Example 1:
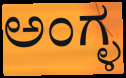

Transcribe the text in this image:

ಅಂಗ್ಳ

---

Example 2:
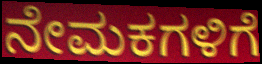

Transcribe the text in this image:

ನೇಮಕಗಳಿಗೆ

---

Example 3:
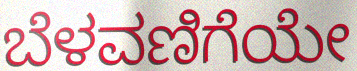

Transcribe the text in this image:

ಬೆಳವಣಿಗೆಯೇ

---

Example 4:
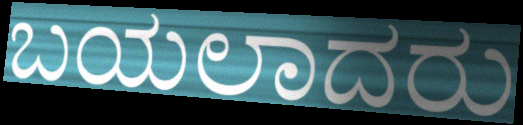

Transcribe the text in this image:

ಬಯಲಾದರು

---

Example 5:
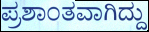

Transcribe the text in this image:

ಪ್ರಶಾಂತವಾಗಿದ್ದು